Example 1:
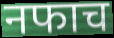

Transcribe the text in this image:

नफाच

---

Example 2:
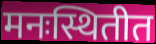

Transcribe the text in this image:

मनःस्थितीत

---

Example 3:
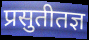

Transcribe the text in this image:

प्रसुतीतज्ञ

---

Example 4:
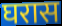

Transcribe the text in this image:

घरास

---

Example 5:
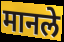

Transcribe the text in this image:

मानले